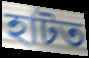
হাটত